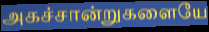
அகச்சான்றுகளையே